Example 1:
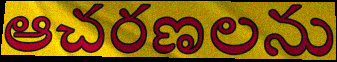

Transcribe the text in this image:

ఆచరణలను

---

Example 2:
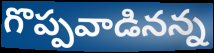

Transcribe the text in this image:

గొప్పవాడినన్న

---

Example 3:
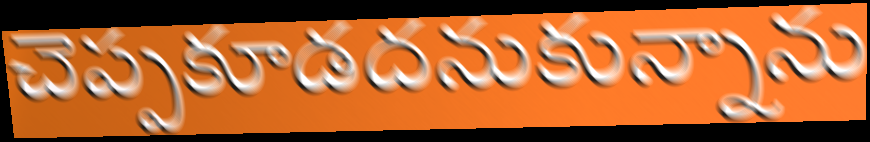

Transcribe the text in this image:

చెప్పకూడదనుకున్నాను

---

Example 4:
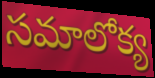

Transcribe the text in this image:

సమాలోక్య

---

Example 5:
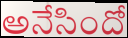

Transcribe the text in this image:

అనేసిందో